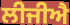
ਲੀਜੀਐ